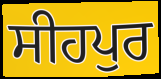
ਸੀਹਪੁਰ